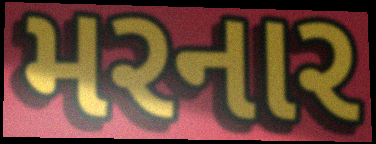
મરનાર